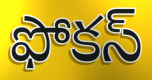
ఫోకస్